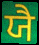
ਯੈ